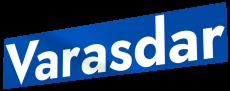
Varasdar